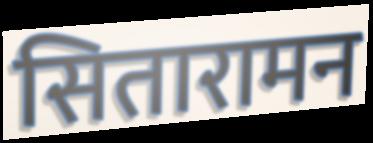
सितारामन